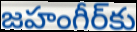
జహంగీర్‌కు